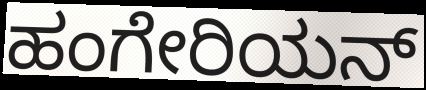
ಹಂಗೇರಿಯನ್